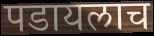
पडायलाच